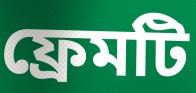
ফ্রেমটি